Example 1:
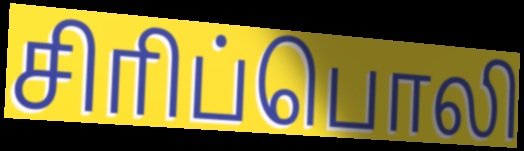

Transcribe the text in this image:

சிரிப்பொலி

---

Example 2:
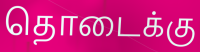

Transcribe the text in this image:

தொடைக்கு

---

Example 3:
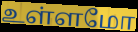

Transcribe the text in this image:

உள்ளமோ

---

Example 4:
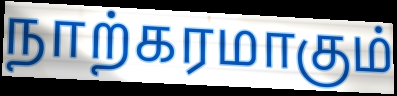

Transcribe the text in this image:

நாற்கரமாகும்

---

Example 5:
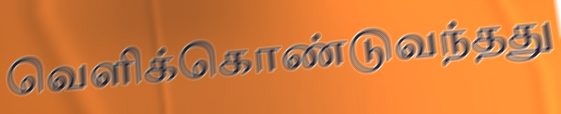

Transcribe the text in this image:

வெளிக்கொண்டுவந்தது